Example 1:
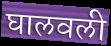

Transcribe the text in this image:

घालवली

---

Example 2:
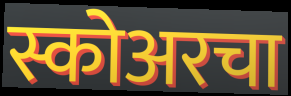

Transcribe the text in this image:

स्कोअरचा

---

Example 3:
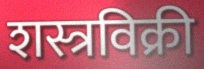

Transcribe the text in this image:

शस्त्रविक्री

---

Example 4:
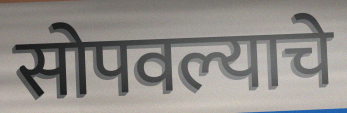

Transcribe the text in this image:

सोपवल्याचे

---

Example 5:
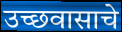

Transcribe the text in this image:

उच्छवासाचे